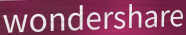
wondershare